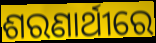
ଶରଣାର୍ଥୀରେ